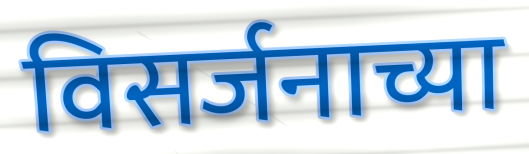
विसर्जनाच्या